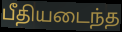
பீதியடைந்த